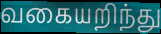
வகையறிந்து